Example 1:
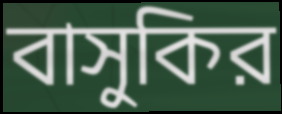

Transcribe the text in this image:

বাসুকির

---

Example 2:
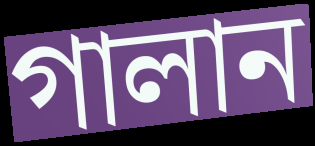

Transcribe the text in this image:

গালান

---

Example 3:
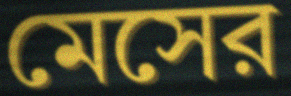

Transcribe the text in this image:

মেসের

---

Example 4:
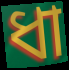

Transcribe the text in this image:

ধা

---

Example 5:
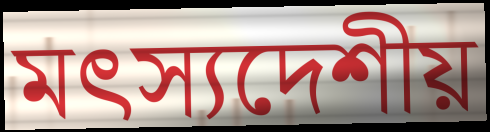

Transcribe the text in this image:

মৎস্যদেশীয়